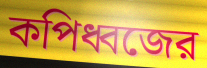
কপিধ্বজের